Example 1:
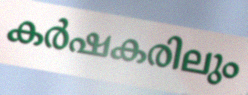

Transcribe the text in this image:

കർഷകരിലും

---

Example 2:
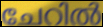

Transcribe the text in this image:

ചേറിൽ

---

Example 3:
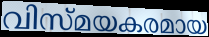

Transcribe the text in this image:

വിസ്മയകരമായ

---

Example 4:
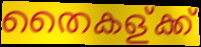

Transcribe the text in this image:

തൈകള്ക്ക്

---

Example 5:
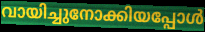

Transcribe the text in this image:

വായിച്ചുനോക്കിയപ്പോൾ